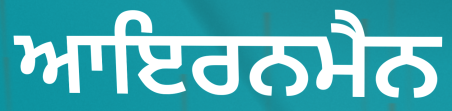
ਆਇਰਨਮੈਨ